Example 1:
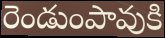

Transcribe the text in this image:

రెండుంపావుకి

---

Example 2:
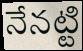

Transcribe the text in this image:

నేనట్టి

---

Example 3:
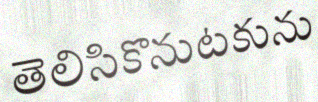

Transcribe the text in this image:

తెలిసికొనుటకును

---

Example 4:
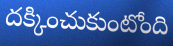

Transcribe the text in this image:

దక్కించుకుంటోంది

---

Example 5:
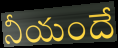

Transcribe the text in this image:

నీయందే